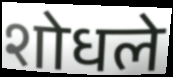
शोधले